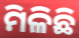
ମିଳିଛି